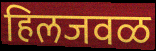
हिलजवळ